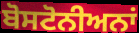
ਬੋਸਟੋਨੀਅਨਾਂ